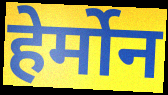
हेर्मोन